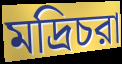
মদ্রিচরা